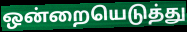
ஒன்றையெடுத்து